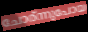
ചോര്ന്നുപോയ